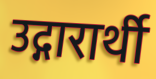
उद्गारार्थी